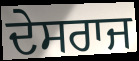
ਦੇਸਰਾਜ